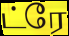
ட்ரே